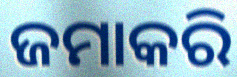
ଜମାକରି